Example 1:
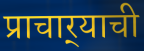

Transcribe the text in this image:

प्राचार्याची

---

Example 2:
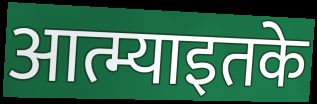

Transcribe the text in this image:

आत्म्याइतके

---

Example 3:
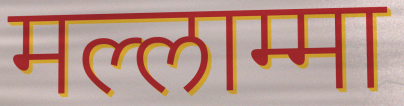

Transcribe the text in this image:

मल्लाम्मा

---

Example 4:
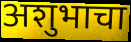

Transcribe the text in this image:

अशुभाचा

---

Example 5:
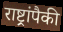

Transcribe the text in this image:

राष्ट्रांपैकी